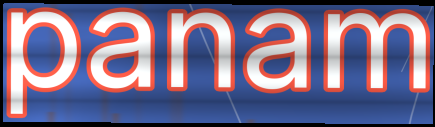
panam